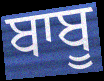
ਬਾਬੂ